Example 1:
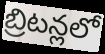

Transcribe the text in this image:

బ్రిటన్లలో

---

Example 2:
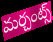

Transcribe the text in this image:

మర్చంట్స్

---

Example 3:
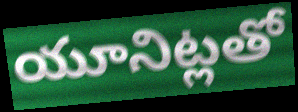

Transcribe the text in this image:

యూనిట్లతో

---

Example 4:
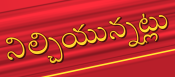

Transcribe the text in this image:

నిల్చియున్నట్లు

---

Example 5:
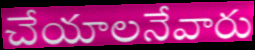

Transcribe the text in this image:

చేయాలనేవారు